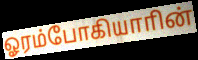
ஓரம்போகியாரின்